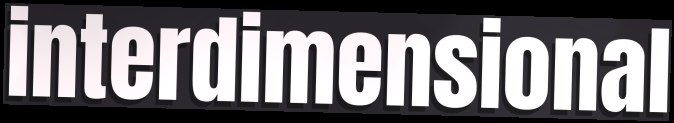
interdimensional